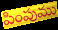
పింపుము